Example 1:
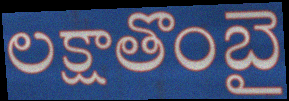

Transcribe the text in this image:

లక్షాతొంబై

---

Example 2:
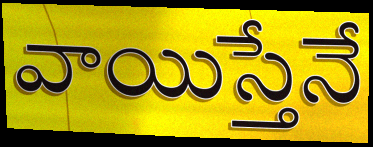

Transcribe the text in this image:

వాయిస్తేనే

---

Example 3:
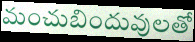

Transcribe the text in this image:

మంచుబిందువులతో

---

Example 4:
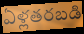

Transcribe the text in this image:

ఏళ్లతరబడి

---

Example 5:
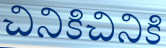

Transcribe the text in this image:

చినికిచినికి